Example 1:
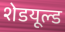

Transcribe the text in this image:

शेडयूल्ड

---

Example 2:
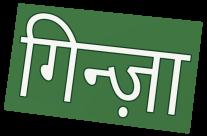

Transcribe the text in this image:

गिन्ज़ा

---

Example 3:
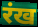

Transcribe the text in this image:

रंख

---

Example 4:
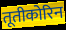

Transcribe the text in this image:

तूतीकोरिन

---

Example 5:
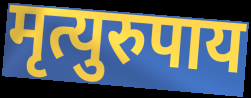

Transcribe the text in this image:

मृत्युरुपाय